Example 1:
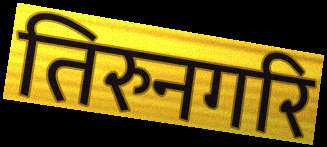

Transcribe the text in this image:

तिरुनगरि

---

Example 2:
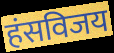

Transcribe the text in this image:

हंसविजय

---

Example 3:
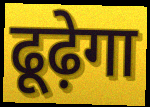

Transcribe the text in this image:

ढूढ़ेगा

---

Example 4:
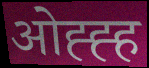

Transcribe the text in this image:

ओह्ह्ह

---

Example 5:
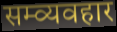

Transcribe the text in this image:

सम्व्यवहार